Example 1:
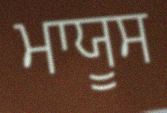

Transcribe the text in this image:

ਮਾਯੂਸ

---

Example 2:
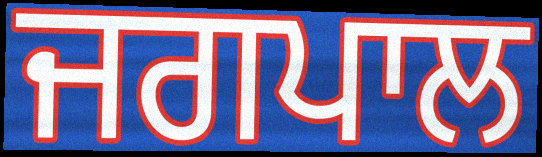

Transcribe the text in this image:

ਜਗਪਾਲ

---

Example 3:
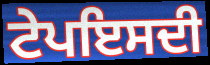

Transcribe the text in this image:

ਟੇਪਇਸਦੀ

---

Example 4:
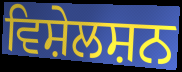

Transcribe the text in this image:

ਵਿਸ਼ੇਲਸ਼ਨ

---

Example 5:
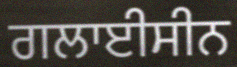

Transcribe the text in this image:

ਗਲਾਈਸੀਨ